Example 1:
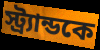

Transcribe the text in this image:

স্ট্র্যান্ডকে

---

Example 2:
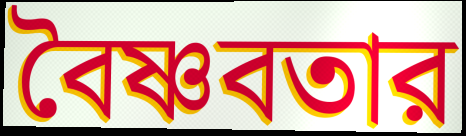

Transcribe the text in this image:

বৈষ্ণবতার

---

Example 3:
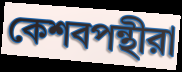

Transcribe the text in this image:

কেশবপন্থীরা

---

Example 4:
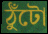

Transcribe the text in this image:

ঠুঁটো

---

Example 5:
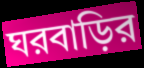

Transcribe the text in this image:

ঘরবাড়ির